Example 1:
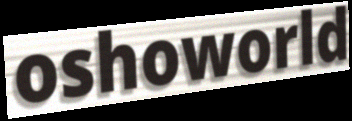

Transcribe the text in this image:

oshoworld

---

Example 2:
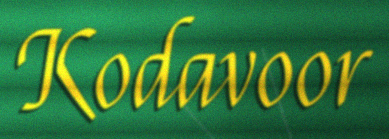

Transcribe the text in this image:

Kodavoor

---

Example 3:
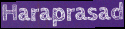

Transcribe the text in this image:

Haraprasad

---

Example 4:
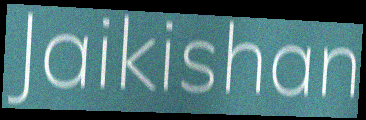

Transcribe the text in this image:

Jaikishan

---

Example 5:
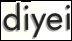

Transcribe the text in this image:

diyei